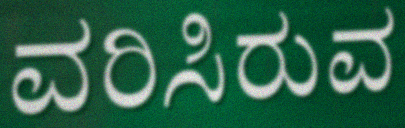
ವರಿಸಿರುವ